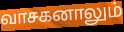
வாசகனாலும்